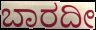
ಬಾರದೀ